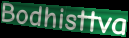
Bodhisttva